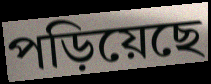
পড়িয়েছে